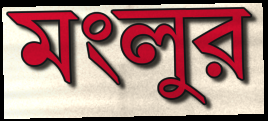
মংলুর